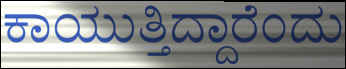
ಕಾಯುತ್ತಿದ್ದಾರೆಂದು